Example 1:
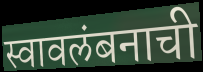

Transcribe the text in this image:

स्वावलंबनाची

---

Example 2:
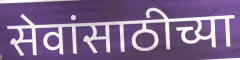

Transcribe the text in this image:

सेवांसाठीच्या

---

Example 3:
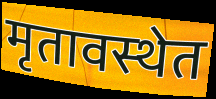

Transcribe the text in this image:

मृतावस्थेत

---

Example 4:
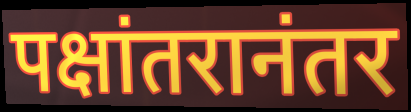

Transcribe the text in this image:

पक्षांतरानंतर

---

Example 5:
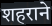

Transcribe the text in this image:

शहराने